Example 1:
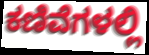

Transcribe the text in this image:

ಕಣಿವೆಗಳಲ್ಲಿ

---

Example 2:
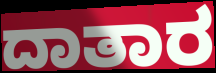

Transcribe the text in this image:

ದಾತಾರ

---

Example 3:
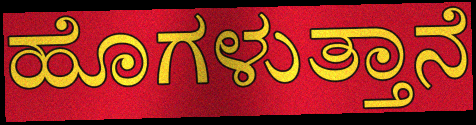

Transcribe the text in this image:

ಹೊಗಳುತ್ತಾನೆ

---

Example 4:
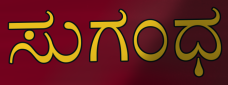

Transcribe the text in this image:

ಸುಗಂಧ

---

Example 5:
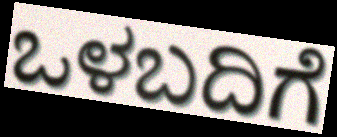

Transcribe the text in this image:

ಒಳಬದಿಗೆ